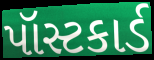
પૉસ્ટકાર્ડ